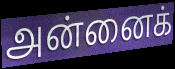
அன்னைக்